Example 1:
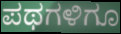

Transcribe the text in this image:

ಪಥಗಳಿಗೂ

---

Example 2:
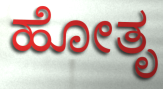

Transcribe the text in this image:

ಹೋತೃ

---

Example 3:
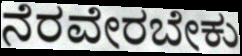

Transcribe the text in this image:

ನೆರವೇರಬೇಕು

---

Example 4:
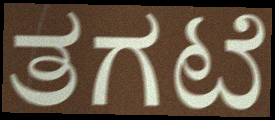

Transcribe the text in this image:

ತಗಟೆ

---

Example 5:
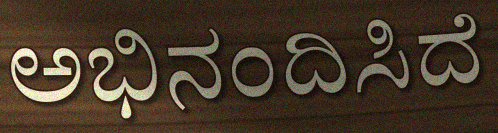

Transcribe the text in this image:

ಅಭಿನಂದಿಸಿದೆ